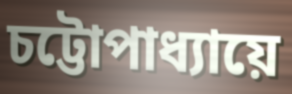
চট্টোপাধ্যায়ে